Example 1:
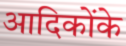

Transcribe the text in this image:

आदिकोंके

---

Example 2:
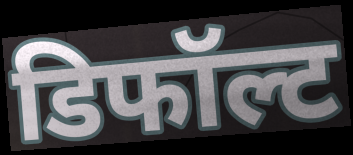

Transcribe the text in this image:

डिफॉल्ट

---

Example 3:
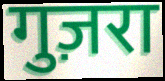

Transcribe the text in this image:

गुज़रा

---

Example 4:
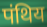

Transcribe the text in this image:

पंथिय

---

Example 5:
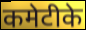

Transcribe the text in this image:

कमेटीके